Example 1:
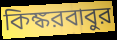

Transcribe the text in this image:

কিঙ্করবাবুর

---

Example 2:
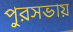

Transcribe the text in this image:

পুরসভায়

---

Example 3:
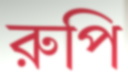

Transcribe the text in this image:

রুপি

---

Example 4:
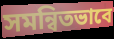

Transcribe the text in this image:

সমন্বিতভাবে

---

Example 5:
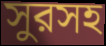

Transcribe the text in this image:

সুরসহ